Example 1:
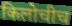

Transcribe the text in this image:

किलोचीच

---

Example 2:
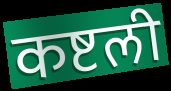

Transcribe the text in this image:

कष्टली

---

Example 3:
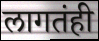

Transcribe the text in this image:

लागतंही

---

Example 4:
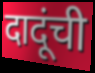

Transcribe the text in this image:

दादूंची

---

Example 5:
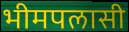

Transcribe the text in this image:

भीमपलासी